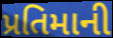
પ્રતિમાની